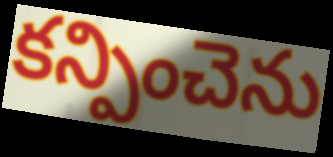
కన్పించెను